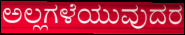
ಅಲ್ಲಗಳೆಯುವುದರ